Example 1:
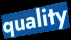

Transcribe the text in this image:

quality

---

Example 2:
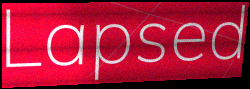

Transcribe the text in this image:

Lapsed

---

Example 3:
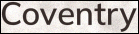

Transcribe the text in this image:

Coventry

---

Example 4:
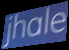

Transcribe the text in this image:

jhale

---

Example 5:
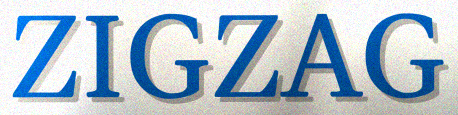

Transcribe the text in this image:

ZIGZAG